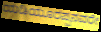
ಯಡಿಯೂರಪ್ಪನವರೇ